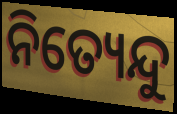
ନିତ୍ୟେନ୍ଦୁ